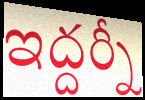
ఇద్దర్నీ